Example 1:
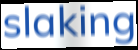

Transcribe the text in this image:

slaking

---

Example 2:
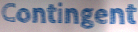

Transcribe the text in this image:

Contingent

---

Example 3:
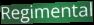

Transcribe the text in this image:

Regimental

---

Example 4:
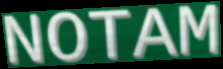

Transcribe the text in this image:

NOTAM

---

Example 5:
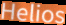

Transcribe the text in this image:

Helios